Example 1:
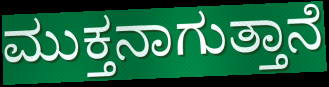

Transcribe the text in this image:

ಮುಕ್ತನಾಗುತ್ತಾನೆ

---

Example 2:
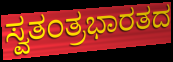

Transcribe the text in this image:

ಸ್ವತಂತ್ರಭಾರತದ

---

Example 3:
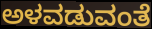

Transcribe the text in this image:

ಅಳವಡುವಂತೆ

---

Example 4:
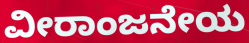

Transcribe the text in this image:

ವೀರಾಂಜನೇಯ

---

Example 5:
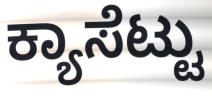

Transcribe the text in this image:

ಕ್ಯಾಸೆಟ್ಟು